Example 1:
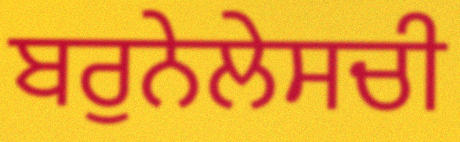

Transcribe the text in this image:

ਬਰੁਨੇਲੇਸਚੀ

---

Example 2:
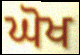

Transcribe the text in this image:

ਘੋਖ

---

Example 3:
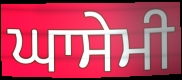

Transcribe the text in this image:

ਘਾਸੇਮੀ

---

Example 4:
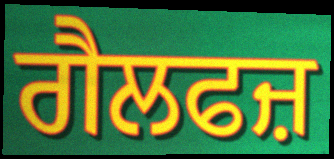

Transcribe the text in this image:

ਗੈਲਫਜ਼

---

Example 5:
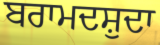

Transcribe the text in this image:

ਬਰਾਮਦਸ਼ੁਦਾ